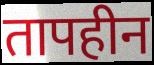
तापहीन